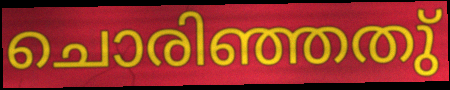
ചൊരിഞ്ഞതു്